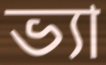
ভ্যা